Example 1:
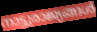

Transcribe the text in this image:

നാട്ടുരാജ്യങ്ങൾ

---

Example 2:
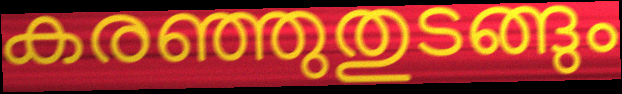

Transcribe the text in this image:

കരഞ്ഞുതുടങ്ങും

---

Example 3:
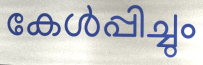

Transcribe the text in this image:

കേൾപ്പിച്ചും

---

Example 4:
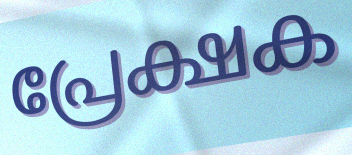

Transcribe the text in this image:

പ്രേക്ഷക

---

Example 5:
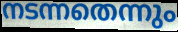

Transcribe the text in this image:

നടന്നതെന്നും